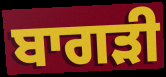
ਬਾਗੜੀ